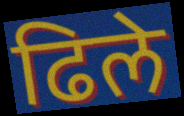
ढिले